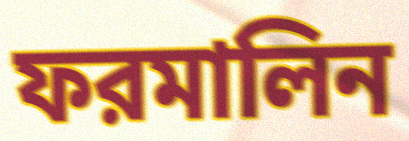
ফরমালিন